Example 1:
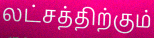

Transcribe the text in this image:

லட்சத்திற்கும்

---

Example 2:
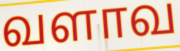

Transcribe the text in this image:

வளாவ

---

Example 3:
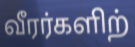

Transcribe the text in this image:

வீரர்களிற்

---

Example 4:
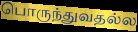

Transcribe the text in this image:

பொருந்துவதல்ல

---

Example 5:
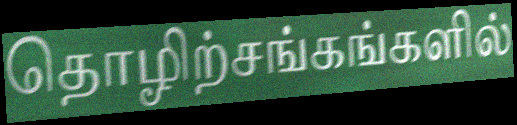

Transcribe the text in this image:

தொழிற்சங்கங்களில்